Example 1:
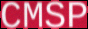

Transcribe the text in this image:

CMSP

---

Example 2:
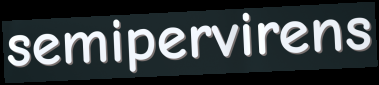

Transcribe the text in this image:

semipervirens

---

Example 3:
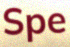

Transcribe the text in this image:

Spe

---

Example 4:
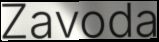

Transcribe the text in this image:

Zavoda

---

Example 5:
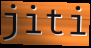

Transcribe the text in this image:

jiti